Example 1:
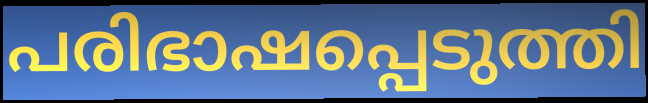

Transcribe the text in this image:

പരിഭാഷപ്പെടുത്തി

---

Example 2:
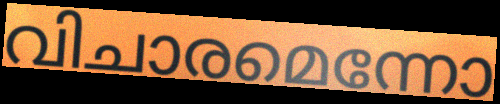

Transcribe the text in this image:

വിചാരമെന്നോ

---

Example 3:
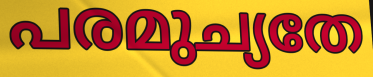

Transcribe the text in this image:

പരമുച്യതേ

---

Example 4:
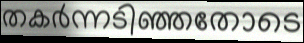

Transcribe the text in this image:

തകർന്നടിഞ്ഞതോടെ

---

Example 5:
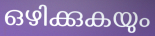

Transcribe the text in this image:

ഒഴിക്കുകയും